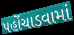
પહોંચાડવામાં